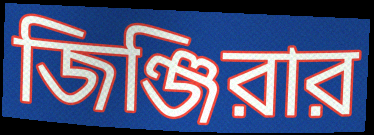
জিঞ্জিরার